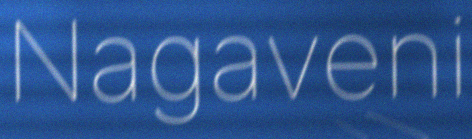
Nagaveni